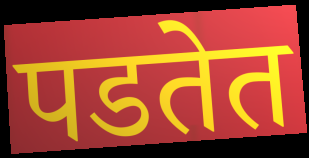
पडतेत